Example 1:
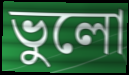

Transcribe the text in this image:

ভুলো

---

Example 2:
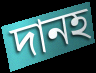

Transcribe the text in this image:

দানহ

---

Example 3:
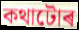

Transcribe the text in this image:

কথাটোৰ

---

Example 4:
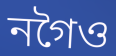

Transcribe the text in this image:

নগৈও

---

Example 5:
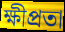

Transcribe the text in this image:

ক্ষীপ্ৰতা